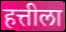
हत्तीला